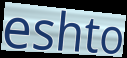
eshto